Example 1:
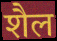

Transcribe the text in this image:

शैल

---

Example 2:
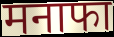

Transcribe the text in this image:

मनाफा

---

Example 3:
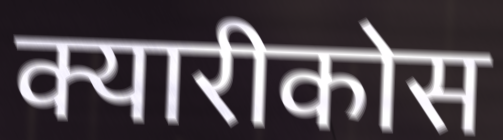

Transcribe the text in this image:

क्यारीकोस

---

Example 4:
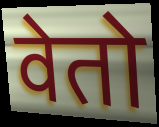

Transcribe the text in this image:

वेतो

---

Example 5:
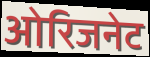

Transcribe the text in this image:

ओरिजनेट